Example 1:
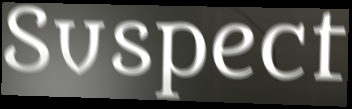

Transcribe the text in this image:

Suspect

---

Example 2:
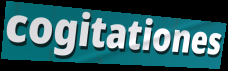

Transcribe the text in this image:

cogitationes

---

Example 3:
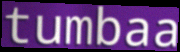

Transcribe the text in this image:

tumbaa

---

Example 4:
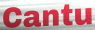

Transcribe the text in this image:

Cantu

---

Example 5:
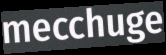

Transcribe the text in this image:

mecchuge